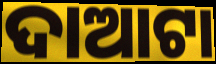
ଦାଆଟା